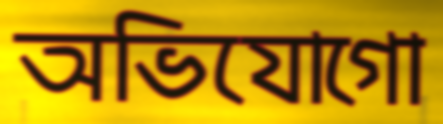
অভিযোগো